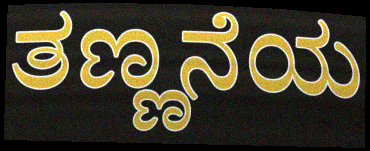
ತಣ್ಣನೆಯ